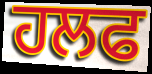
ਹਲਫ